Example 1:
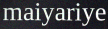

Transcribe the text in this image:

maiyariye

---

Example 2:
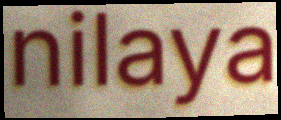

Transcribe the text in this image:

nilaya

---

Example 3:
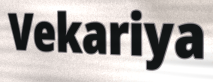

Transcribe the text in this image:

Vekariya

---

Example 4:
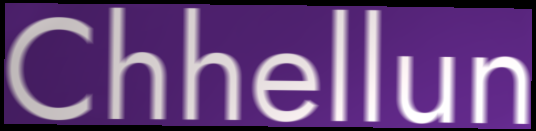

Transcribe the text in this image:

Chhellun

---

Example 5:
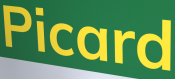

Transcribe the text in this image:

Picard